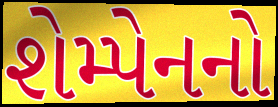
શેમ્પેનનો